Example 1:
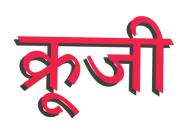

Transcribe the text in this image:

क्रूजी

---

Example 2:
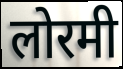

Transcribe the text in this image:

लोरमी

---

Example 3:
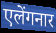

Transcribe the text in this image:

एलेंगनार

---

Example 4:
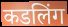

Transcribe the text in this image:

कडलिंग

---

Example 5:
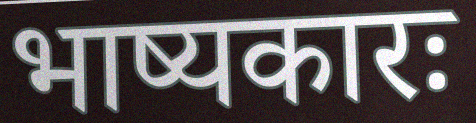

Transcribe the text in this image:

भाष्यकारः